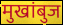
मुखांबुज